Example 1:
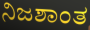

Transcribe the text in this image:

ನಿಜಶಾಂತ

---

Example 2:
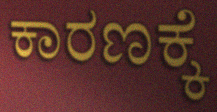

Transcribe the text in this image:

ಕಾರಣಕ್ಕೆ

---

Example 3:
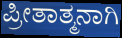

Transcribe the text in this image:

ಪ್ರೀತಾತ್ಮನಾಗಿ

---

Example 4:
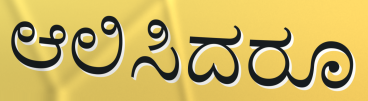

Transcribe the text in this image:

ಆಲಿಸಿದರೂ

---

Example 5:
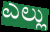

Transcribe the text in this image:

ಎಲ್ಲು